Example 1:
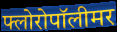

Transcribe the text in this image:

फ्लोरोपॉलीमर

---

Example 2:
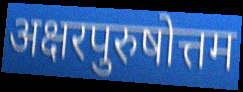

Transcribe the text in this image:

अक्षरपुरुषोत्तम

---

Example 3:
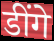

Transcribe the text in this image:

डींगे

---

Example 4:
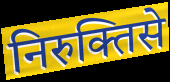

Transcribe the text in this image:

निरुक्तिसे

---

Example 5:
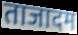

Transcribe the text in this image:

ताजादम